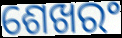
ଶେଖରଂ